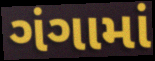
ગંગામાં